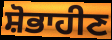
ਸ਼ੋਭਾਹੀਣ